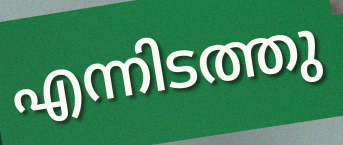
എന്നിടത്തു